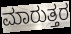
ಮಾರುತ್ತರ